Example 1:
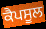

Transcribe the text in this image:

ਕੈਪਸੂਲ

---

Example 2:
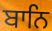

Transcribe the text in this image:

ਬਾਨਿ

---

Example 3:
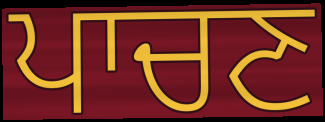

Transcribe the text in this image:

ਪਾਚਣ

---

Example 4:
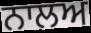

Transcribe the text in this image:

ਨਾਲਅ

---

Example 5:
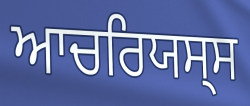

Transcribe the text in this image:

ਆਚਰਿਯਸ੍ਸ